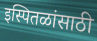
इस्पितळांसाठी